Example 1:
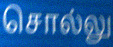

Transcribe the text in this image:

சொல்லு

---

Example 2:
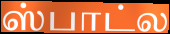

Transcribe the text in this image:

ஸ்பாட்ல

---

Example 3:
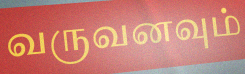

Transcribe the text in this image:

வருவனவும்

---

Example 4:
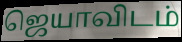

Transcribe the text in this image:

ஜெயாவிடம்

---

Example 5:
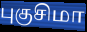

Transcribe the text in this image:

புகுசிமா